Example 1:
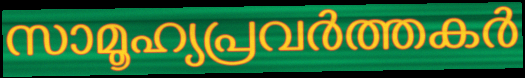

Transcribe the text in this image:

സാമൂഹ്യപ്രവർത്തകർ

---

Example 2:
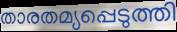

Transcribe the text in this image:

താരതമ്യപ്പെടുത്തി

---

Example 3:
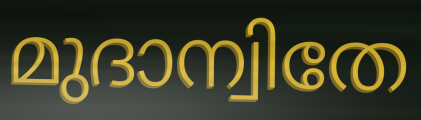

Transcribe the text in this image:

മുദാന്വിതേ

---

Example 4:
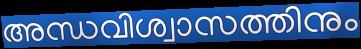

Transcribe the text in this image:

അന്ധവിശ്വാസത്തിനും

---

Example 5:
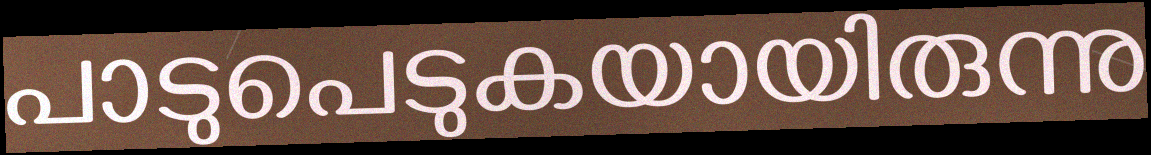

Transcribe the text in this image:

പാടുപെടുകയായിരുന്നു